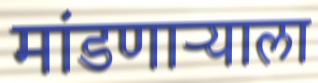
मांडणाऱ्याला